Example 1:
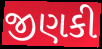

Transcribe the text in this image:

જીણકી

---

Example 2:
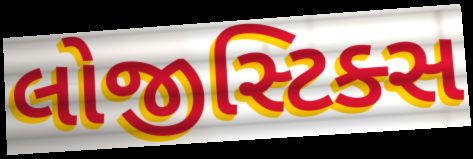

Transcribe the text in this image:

લોજીસ્ટિક્સ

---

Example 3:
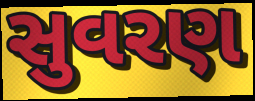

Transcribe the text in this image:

સુવરણ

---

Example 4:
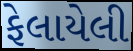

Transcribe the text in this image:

ફેલાયેલી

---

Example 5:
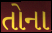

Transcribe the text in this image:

તોના